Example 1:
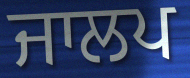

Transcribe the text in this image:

ਜਾਲਪ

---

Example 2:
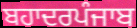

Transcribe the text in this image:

ਬਹਾਦਰਪੰਜਾਬ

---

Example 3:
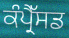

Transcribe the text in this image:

ਕੰਪ੍ਰੈੱਸਡ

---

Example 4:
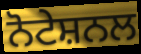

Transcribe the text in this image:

ਨੋਟੇਸ਼ਨਲ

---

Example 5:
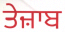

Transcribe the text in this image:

ਤੇਜ਼ਾਬ